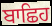
ਬਾਛਿਹ